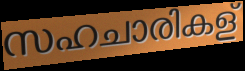
സഹചാരികള്